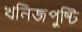
খনিজপুষ্টি